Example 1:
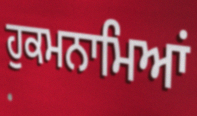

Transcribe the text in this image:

ਹੁਕਮਨਾਮਿਆਂ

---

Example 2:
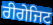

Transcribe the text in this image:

ਰੀਗੇਜਿਟ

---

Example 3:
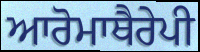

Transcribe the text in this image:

ਆਰੋਮਾਥੈਰੇਪੀ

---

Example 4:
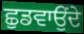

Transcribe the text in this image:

ਛੁਡਵਾਉਂਦੇ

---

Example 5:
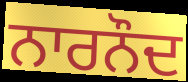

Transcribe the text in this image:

ਨਾਰਨੌਦ